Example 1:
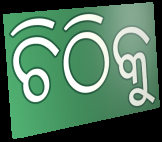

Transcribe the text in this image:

ଚିଠିକୁ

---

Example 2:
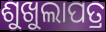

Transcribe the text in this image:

ଶୁଖୁଲାପତ୍ର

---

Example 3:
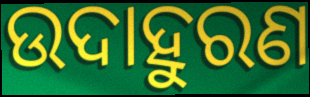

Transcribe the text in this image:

ଉଦାହୁରଣ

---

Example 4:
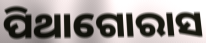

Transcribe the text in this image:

ପିଥାଗୋରାସ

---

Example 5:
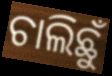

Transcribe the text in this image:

ଚାଲିଛୁଁ